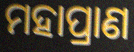
ମହାପ୍ରାଣ